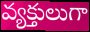
వ్యక్తులుగా